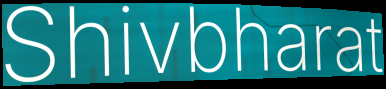
Shivbharat